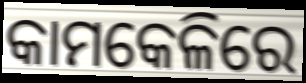
କାମକେଳିରେ